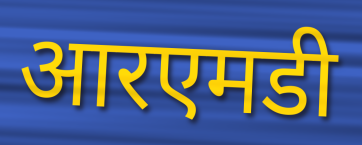
आरएमडी